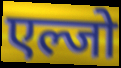
एल्जो